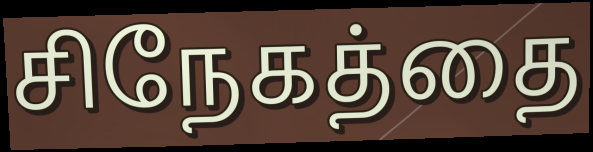
சிநேகத்தை